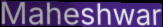
Maheshwar